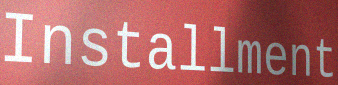
Installment